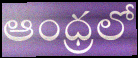
ఆంధ్రలో